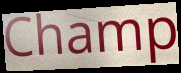
Champ